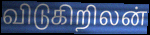
விடுகிறிலன்